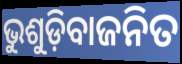
ଭୁଶୁଡ଼ିବାଜନିତ